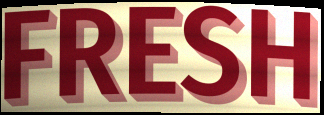
FRESH